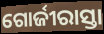
ଗୋର୍ଜୀରାସ୍ତା